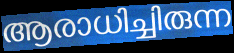
ആരാധിച്ചിരുന്ന